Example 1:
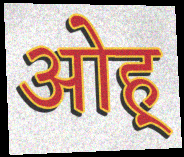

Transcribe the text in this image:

ओह्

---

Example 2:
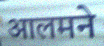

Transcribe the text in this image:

आलमने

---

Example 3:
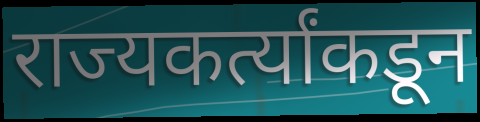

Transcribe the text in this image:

राज्यकर्त्यांकडून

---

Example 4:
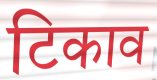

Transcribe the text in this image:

टिकाव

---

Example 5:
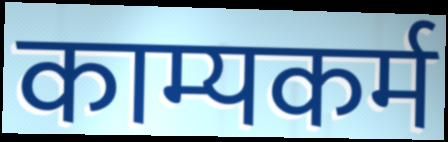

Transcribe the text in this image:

काम्यकर्म